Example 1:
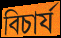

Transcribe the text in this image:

বিচাৰ্য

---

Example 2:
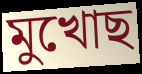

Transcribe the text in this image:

মুখোছ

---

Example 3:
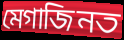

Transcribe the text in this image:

মেগাজিনত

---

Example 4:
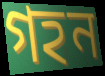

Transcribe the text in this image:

গহন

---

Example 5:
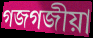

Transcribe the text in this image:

গজগজীয়া